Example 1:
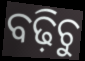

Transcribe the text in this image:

ବଢ଼ିଚୁ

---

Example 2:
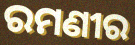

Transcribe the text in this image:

ରମଣୀର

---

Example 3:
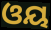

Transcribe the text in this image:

ଓୟ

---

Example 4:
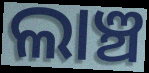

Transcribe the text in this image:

ଲାଞ୍ଚ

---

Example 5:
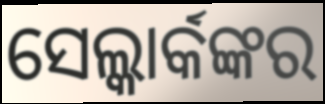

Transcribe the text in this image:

ସେଲ୍କାର୍କଙ୍କର